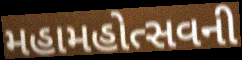
મહામહોત્સવની